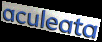
aculeata